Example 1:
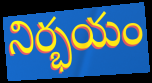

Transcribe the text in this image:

నిర్భయం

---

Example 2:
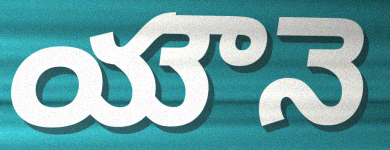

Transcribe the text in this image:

యౌనె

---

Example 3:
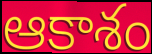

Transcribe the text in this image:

ఆకాశం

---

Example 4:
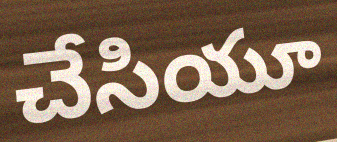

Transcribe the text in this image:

చేసియూ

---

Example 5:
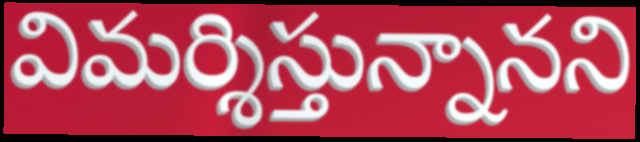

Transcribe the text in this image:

విమర్శిస్తున్నానని